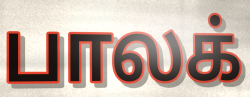
பாலக்